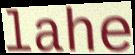
lahe